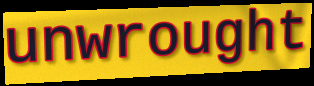
unwrought